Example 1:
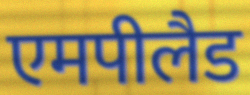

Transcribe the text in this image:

एमपीलैड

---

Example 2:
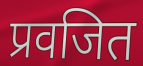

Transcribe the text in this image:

प्रवजित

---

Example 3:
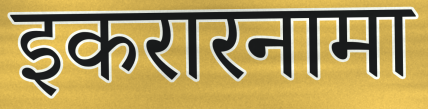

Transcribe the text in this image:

इकरारनामा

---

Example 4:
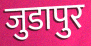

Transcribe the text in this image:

जुडापुर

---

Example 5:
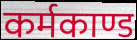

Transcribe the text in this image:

कर्मकाण्ड